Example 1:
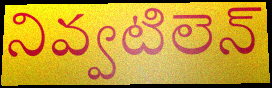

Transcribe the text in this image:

నివ్వటిలెన్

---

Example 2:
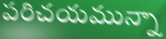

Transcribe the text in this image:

పరిచయమున్నా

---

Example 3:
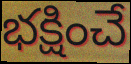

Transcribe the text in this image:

భక్షించే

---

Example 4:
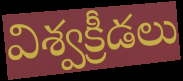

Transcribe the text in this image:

విశ్వక్రీడలు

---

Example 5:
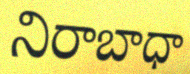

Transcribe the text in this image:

నిరాబాధా